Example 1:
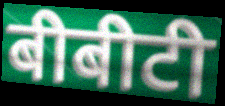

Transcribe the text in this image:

बीबीटी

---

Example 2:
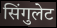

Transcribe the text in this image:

सिंगुलेट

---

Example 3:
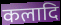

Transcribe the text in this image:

कलादि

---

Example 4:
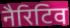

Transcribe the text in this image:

नैरिटिव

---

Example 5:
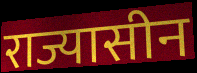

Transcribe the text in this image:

राज्यासीन